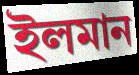
ইলমান